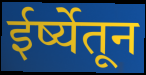
ईर्ष्येतून